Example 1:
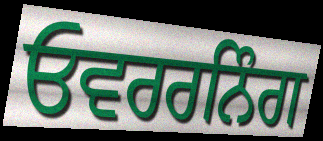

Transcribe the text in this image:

ਓਵਰਰਨਿੰਗ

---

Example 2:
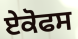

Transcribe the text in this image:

ਏਕੋਫਸ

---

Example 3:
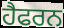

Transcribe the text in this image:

ਹੈਫਰਨ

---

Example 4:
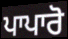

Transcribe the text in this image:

ਪਾਪਾਰੋ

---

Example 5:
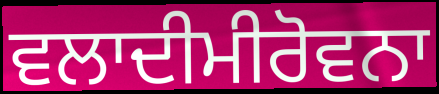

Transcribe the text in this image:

ਵਲਾਦੀਮੀਰੋਵਨਾ